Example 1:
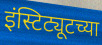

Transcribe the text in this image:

इंस्टिट्यूटच्या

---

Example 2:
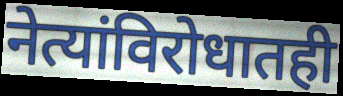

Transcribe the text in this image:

नेत्यांविरोधातही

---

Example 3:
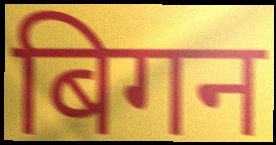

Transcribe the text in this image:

बिगन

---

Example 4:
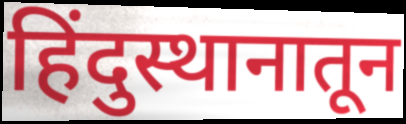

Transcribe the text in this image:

हिंदुस्थानातून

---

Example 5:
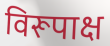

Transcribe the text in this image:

विरूपाक्ष